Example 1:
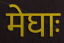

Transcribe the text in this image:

मेघाः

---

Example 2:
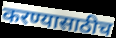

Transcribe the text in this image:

करण्यासाठीच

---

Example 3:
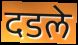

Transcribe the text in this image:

दडले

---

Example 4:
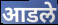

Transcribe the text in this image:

आडले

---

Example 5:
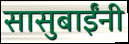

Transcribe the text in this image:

सासुबाईंनी